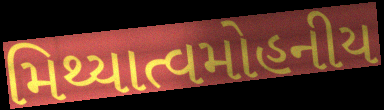
મિથ્યાત્વમોહનીય